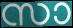
സാ